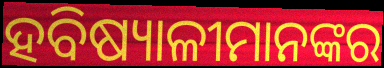
ହବିଷ୍ୟାଳୀମାନଙ୍କର